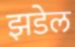
झडेल